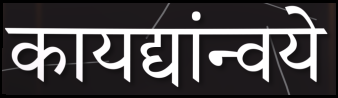
कायद्यांन्वये